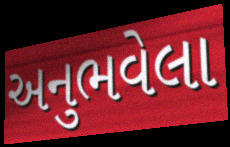
અનુભવેલા